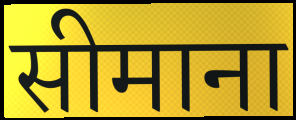
सीमाना